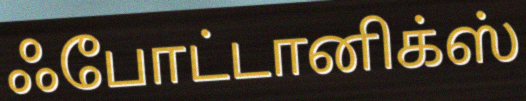
ஃபோட்டானிக்ஸ்